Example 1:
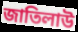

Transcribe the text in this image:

জাতিলাউ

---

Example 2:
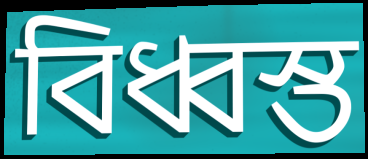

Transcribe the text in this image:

বিধ্বস্ত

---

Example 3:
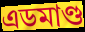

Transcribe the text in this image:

এডমাণ্ড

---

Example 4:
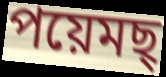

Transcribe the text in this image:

পয়েমছ্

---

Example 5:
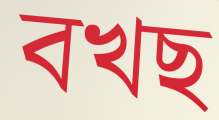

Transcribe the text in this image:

বখছ